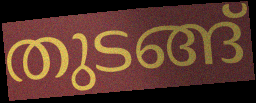
തുടങ്ങ്